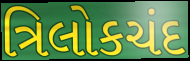
ત્રિલોકચંદ